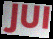
JUI